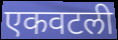
एकवटली